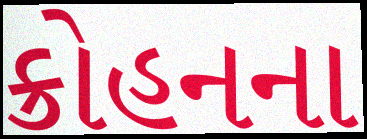
ક્રોહનના